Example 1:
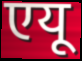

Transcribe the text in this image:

एयू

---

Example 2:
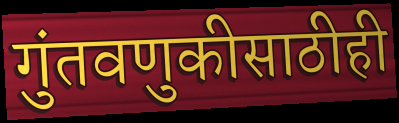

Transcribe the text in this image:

गुंतवणुकीसाठीही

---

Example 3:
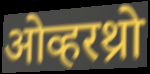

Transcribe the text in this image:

ओव्हरथ्रो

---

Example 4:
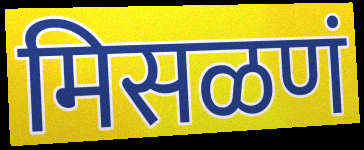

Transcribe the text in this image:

मिसळणं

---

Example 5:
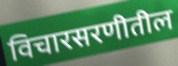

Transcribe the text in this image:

विचारसरणीतील